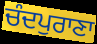
ਚੰਦਪੁਰਾਣਾ